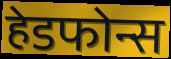
हेडफोन्स